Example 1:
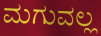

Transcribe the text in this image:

ಮಗುವಲ್ಲ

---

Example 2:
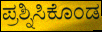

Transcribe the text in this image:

ಪ್ರಶ್ನಿಸಿಕೊಂಡ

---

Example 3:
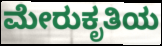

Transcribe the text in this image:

ಮೇರುಕೃತಿಯ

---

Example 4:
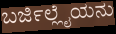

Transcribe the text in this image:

ಬರ್ಜಿಲ್ಲೈಯನು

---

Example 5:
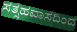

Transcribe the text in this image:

ಸತ್ಸಹವಾಸದಿಂದ